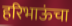
हरिभाऊंचा